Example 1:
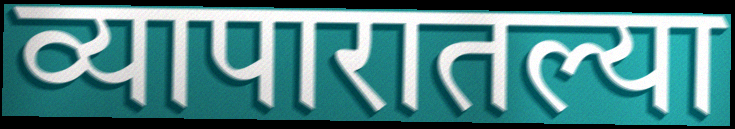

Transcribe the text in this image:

व्यापारातल्या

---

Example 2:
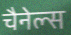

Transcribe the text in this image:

चैनेल्स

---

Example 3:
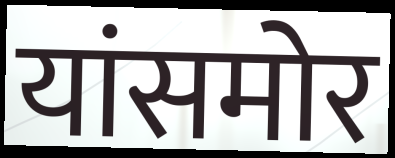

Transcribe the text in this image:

यांसमोर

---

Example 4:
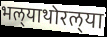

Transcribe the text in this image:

भल्याथोरल्या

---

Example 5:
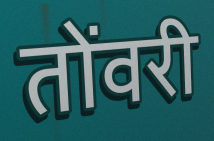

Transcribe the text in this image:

तोंवरी